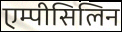
एम्पीसिलिन